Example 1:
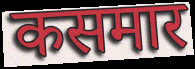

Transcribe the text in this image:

कसमार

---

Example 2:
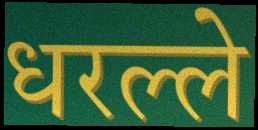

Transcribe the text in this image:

धरल्ले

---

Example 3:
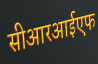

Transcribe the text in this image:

सीआरआईएफ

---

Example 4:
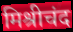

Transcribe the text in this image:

मिश्रीचंद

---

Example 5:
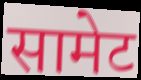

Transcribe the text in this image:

सामेट